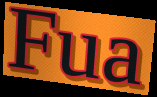
Fua